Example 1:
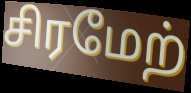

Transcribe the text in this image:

சிரமேற்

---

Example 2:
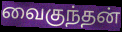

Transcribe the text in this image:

வைகுந்தன்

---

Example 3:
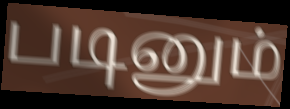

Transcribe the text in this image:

படினும்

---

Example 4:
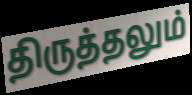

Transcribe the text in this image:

திருத்தலும்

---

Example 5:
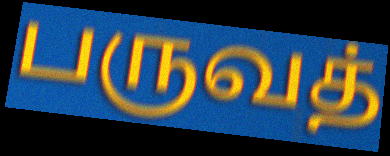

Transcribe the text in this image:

பருவத்